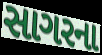
સાગરના